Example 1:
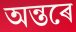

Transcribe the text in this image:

অন্তৰে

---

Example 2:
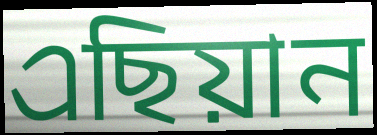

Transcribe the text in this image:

এছিয়ান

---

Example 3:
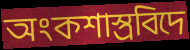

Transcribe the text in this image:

অংকশাস্ত্ৰবিদে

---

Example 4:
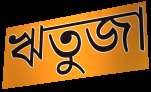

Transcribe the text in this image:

ঋতুজা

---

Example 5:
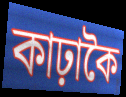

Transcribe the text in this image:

কাঢ়াকৈ